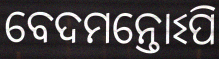
ବେଦମନ୍ତୋଽପି